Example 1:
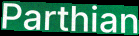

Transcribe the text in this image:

Parthian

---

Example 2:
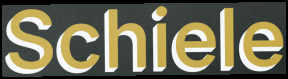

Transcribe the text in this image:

Schiele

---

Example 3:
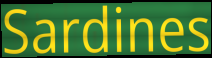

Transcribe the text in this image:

Sardines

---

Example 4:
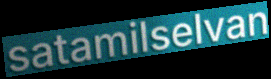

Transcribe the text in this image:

satamilselvan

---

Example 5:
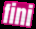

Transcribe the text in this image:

fini